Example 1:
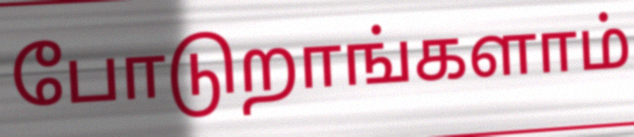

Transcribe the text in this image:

போடுறாங்களாம்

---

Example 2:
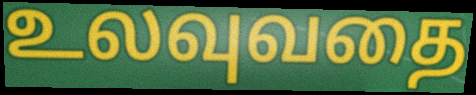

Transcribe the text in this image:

உலவுவதை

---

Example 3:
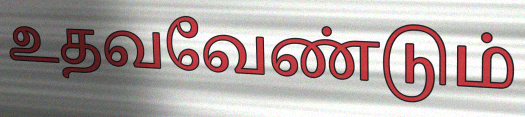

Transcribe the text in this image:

உதவவேண்டும்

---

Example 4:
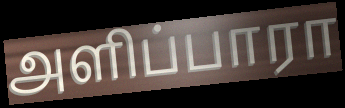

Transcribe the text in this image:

அளிப்பாரா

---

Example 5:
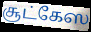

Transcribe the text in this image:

சூட்கேஸ